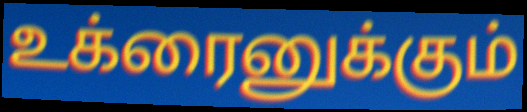
உக்ரைனுக்கும்